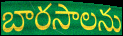
బారసాలను